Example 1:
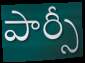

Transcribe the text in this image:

పార్సీ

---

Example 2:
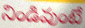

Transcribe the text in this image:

నిండివుంటే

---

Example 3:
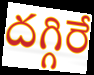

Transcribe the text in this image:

దగ్గిరే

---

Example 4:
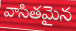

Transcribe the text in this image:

వాసితమైన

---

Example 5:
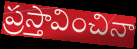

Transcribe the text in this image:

ప్రస్తావించినా